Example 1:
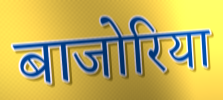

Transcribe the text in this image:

बाजोरिया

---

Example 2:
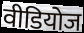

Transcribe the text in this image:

वीडियोज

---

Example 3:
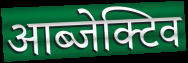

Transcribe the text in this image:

आब्जेक्टिव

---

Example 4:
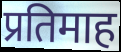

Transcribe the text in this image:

प्रतिमाह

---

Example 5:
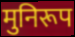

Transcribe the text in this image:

मुनिरूप